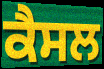
ਕੈਸਲ